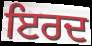
ਇਰਦ